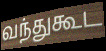
வந்துகூட